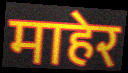
माहेर